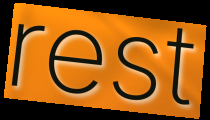
rest